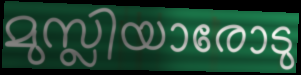
മുസ്ലിയാരോടു